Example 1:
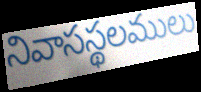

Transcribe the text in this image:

నివాసస్థలములు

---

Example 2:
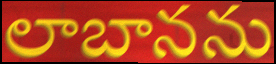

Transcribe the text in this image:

లాబానను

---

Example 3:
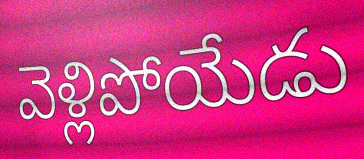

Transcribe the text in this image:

వెళ్లిపోయేడు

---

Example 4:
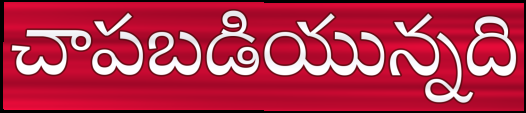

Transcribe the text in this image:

చాపబడియున్నది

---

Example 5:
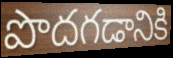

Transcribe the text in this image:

పొదగడానికి